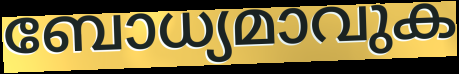
ബോധ്യമാവുക